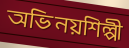
অভিনয়শিল্পী